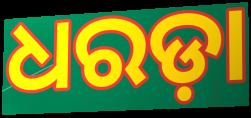
ଧରଡ଼ା